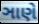
ઞાણે